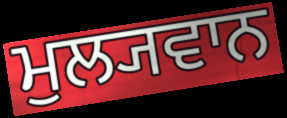
ਮੁਲ੍ਯਵਾਨ